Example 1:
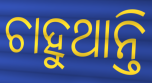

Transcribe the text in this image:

ଚାହୁଥାନ୍ତି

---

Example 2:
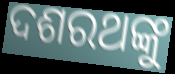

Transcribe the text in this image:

ଦଶରଥଙ୍କୁ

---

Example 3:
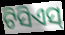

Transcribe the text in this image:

ଟିସିଏସ୍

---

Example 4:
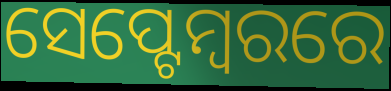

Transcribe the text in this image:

ସେପ୍ଟେମ୍ୱରରେ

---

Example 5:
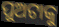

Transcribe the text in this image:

ପୁଅଟାକୁ